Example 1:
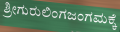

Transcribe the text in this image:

ಶ್ರೀಗುರುಲಿಂಗಜಂಗಮಕ್ಕೆ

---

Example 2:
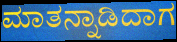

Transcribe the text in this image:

ಮಾತನ್ನಾಡಿದಾಗ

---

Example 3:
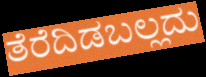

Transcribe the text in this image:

ತೆರೆದಿಡಬಲ್ಲದು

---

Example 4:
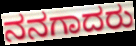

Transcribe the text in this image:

ನನಗಾದರು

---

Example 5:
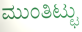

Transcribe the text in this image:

ಮುಂತಿಟ್ಟು